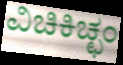
ವಿಚಿಕಿಚ್ಛಂ